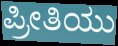
ಪ್ರೀತಿಯು